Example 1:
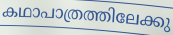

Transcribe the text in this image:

കഥാപാത്രത്തിലേക്കു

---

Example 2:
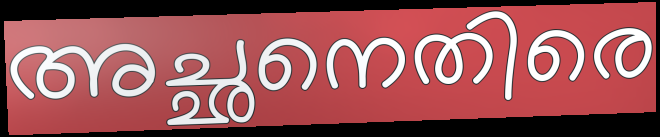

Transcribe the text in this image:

അച്ഛനെതിരെ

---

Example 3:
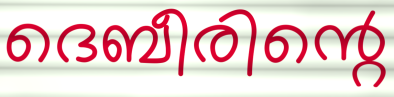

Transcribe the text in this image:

ദെബീരിന്റെ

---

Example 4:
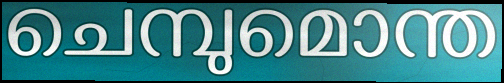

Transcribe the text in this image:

ചെമ്പുമൊന്ത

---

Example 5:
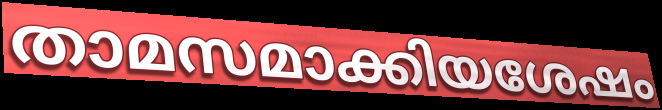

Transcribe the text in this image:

താമസമാക്കിയശേഷം